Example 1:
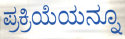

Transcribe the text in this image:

ಪ್ರಕ್ರಿಯೆಯನ್ನೂ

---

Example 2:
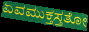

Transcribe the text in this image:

ಏವಮುಕ್ತಸ್ತತೋ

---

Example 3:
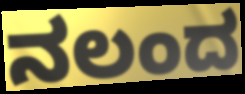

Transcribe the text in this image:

ನಲಂದ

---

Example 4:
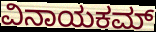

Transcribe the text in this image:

ವಿನಾಯಕಮ್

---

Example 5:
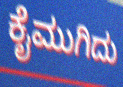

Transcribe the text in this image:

ಕೈಮುಗಿದು